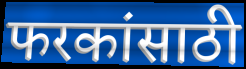
फरकांसाठी